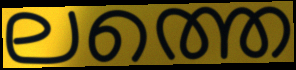
ലത്തെ